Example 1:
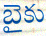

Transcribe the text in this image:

బైకు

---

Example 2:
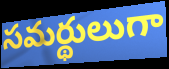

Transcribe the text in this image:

సమర్థులుగా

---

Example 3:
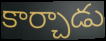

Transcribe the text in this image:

కార్చాడు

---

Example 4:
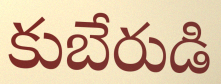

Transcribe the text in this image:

కుబేరుడి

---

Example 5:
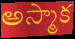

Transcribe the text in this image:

అస్మాక